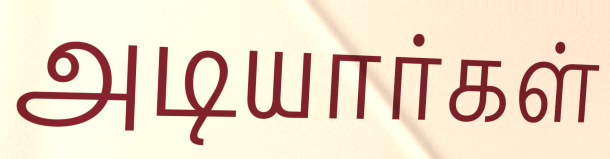
அடியார்கள்